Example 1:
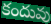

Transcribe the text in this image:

కందువు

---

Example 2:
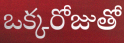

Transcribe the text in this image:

ఒక్కరోజుతో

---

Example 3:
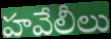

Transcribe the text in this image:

హవేలీలు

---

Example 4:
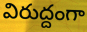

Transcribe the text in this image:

విరుద్దంగా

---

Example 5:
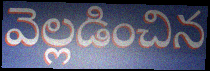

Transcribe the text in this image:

వెల్లడించిన